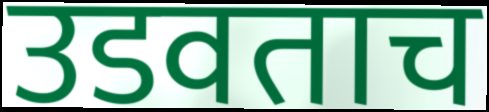
उडवताच